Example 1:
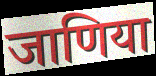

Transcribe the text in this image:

जाणिया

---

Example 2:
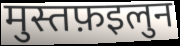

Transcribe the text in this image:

मुस्तफ़इलुन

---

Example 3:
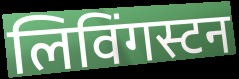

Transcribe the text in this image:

लिविंगस्टन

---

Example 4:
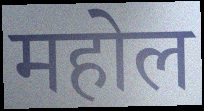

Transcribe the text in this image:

महोल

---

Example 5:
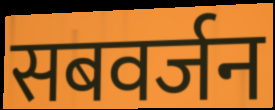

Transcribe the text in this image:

सबवर्जन